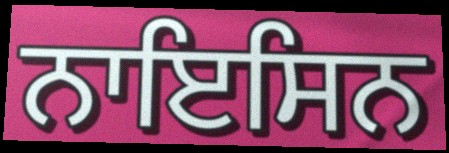
ਨਾਇਸਿਨ